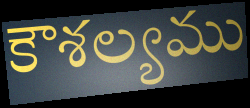
కౌశల్యము